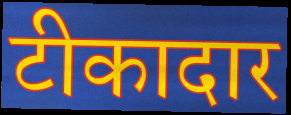
टीकादार